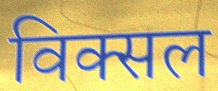
विक्सल